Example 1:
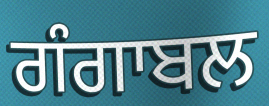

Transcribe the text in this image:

ਗੰਗਾਬਲ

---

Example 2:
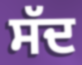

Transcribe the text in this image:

ਸੱਦ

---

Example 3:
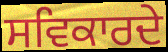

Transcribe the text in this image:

ਸਵਿਕਾਰਦੇ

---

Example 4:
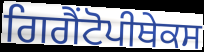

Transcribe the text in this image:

ਗਿਗੈਂਟੋਪੀਥੇਕਸ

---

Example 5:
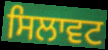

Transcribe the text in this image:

ਸਿਲਾਵਟ